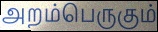
அறம்பெருகும்